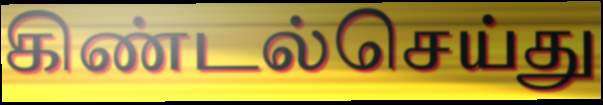
கிண்டல்செய்து